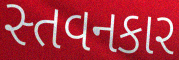
સ્તવનકાર